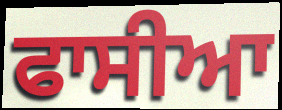
ਫਾਸੀਆ